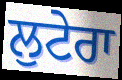
ਲੁਟੇਰਾ